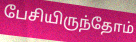
பேசியிருந்தோம்